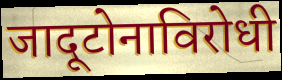
जादूटोनाविरोधी